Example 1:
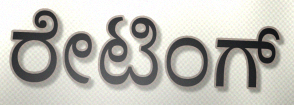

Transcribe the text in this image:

ರೇಟಿಂಗ್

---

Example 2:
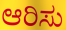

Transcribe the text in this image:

ಆರಿಸು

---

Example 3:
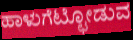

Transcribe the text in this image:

ಹಾಳುಗೆಟ್ಟೋಡುವ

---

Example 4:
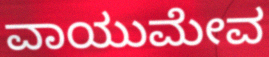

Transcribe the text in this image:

ವಾಯುಮೇವ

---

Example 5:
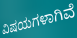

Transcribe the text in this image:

ವಿಷಯಗಳಾಗಿವೆ